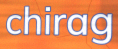
chirag